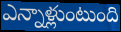
ఎన్నాళ్లుంటుంది